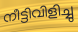
നീട്ടിവിളിച്ചു